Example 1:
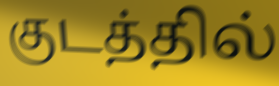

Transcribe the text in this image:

குடத்தில்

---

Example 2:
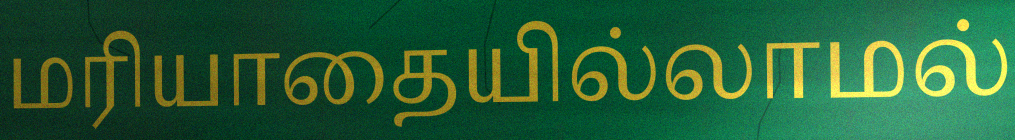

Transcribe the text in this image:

மரியாதையில்லாமல்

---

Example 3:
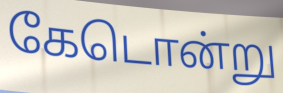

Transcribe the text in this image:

கேடொன்று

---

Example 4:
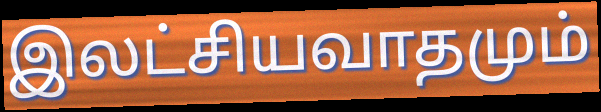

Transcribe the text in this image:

இலட்சியவாதமும்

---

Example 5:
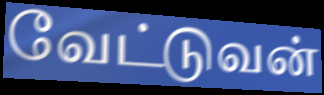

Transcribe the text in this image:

வேட்டுவன்